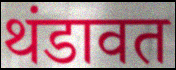
थंडावत